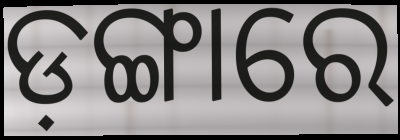
ଡ଼ଙ୍ଗାରେ